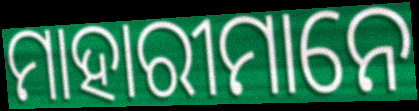
ମାହାରୀମାନେ